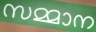
സമ്മാന